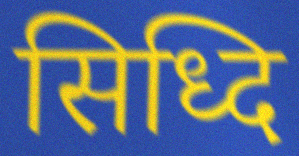
सिध्दि